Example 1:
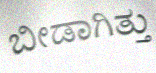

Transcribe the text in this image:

ಬೀಡಾಗಿತ್ತು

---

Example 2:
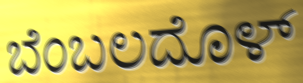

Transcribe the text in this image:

ಬೆಂಬಲದೊಳ್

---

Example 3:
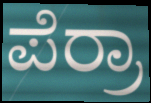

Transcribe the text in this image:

ಪೆರ್ರಾ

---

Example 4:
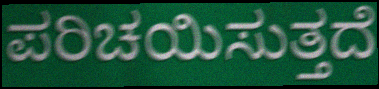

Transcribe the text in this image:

ಪರಿಚಯಿಸುತ್ತದೆ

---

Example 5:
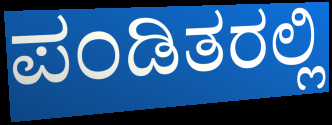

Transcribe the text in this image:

ಪಂಡಿತರಲ್ಲಿ